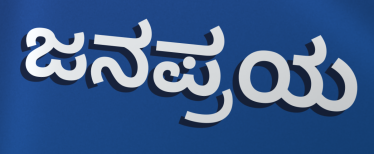
ಜನಪ್ರಯ